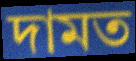
দামত